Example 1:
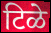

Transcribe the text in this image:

टिळे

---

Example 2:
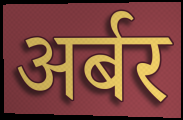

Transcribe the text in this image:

अर्बर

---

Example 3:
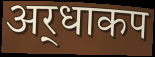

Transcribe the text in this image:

अर्धाकप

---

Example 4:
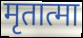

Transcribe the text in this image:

मृतात्मा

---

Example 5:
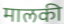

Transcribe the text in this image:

मालकी